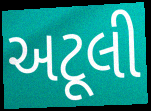
અટૂલી